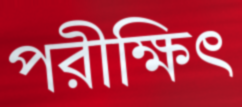
পরীক্ষিৎ